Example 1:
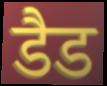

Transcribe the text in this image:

डैड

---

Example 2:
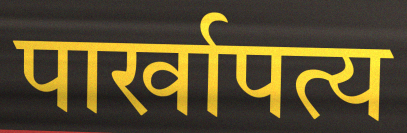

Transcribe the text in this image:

पार्खापत्य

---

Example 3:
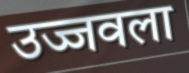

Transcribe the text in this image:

उज्‍जवला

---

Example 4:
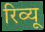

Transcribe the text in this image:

रिव्‍यू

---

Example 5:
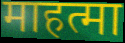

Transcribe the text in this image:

माहत्मा